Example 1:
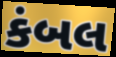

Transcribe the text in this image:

કંબલ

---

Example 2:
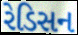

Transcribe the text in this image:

રેડિસન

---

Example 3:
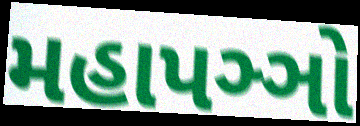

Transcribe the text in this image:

મહાપઞ્ઞો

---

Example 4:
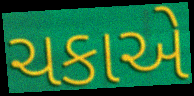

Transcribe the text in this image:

ચકાએ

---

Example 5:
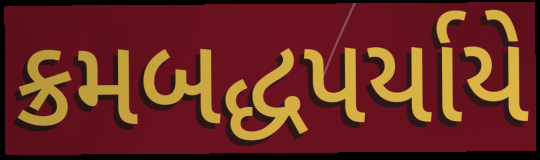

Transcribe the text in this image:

ક્રમબદ્ધપર્યાયે